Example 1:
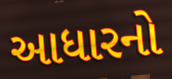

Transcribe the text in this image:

આધારનો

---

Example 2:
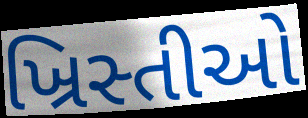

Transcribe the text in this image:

ખ્રિસ્તીઓ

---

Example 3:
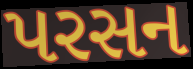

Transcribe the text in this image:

પરસન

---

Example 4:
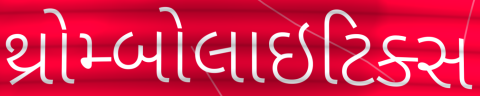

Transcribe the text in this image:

થ્રોમ્બોલાઇટિક્સ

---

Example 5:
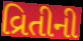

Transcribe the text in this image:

વ્રિતીની